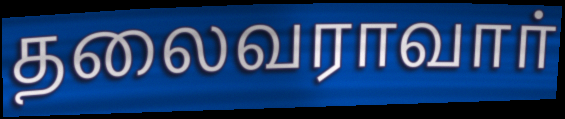
தலைவராவார்